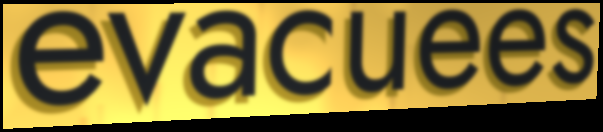
evacuees